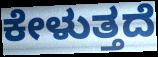
ಕೇಳುತ್ತದೆ